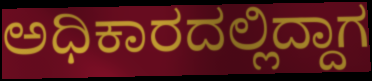
ಅಧಿಕಾರದಲ್ಲಿದ್ದಾಗ